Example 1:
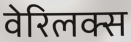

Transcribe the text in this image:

वेरिलक्स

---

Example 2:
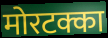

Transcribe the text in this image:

मोरटक्का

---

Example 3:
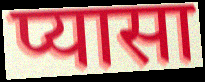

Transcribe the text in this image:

प्यासा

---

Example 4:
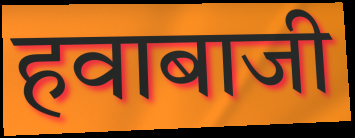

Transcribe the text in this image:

हवाबाजी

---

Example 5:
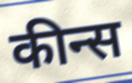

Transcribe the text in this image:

कीन्स